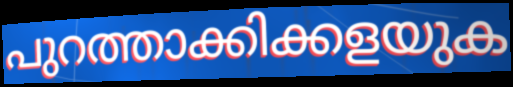
പുറത്താക്കിക്കളയുക